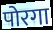
पोरगा